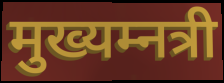
मुख्यम्नत्री